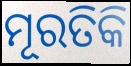
ମୂରତିକି